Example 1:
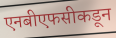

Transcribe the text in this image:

एनबीएफसीकडून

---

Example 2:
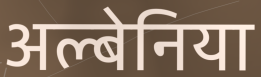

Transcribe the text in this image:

अल्बेनिया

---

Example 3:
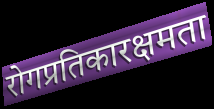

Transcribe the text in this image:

रोगप्रतिकारक्षमता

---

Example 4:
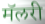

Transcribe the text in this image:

मॅलरी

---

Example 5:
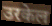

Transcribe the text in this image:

उरकेल